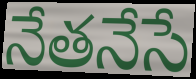
నేతనేసే